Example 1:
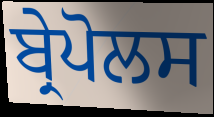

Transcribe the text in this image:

ਬ੍ਰੇਪੋਲਸ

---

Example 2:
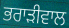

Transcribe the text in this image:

ਭਰਾੜੀਵਾਲ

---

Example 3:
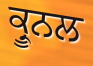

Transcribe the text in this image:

ਕ੍ਰੂਨਲ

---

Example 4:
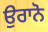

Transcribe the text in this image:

ਉਰਾਨੋ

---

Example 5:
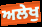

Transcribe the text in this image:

ਅਲੇਖੁ